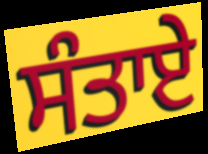
ਸੰਤਾਏ